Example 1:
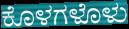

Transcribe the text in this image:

ಕೊಳಗಳೊಳು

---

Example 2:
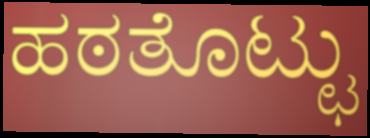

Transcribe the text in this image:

ಹಠತೊಟ್ಟು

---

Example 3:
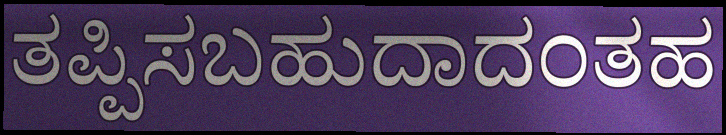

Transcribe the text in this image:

ತಪ್ಪಿಸಬಹುದಾದಂತಹ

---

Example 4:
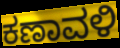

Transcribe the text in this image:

ಕಣಾವಳಿ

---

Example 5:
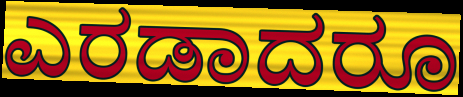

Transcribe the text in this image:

ಎರಡಾದರೂ